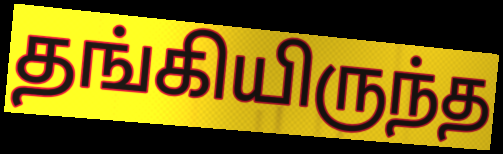
தங்கியிருந்த